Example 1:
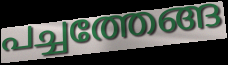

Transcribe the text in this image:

പച്ചത്തേങ്ങ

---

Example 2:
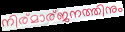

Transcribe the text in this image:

നിര്മാര്ജനത്തിനും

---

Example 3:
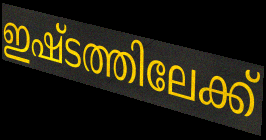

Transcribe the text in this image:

ഇഷ്ടത്തിലേക്ക്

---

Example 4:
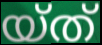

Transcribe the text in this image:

യ്ത്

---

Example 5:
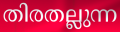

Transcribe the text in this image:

തിരതല്ലുന്ന